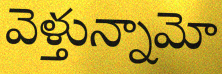
వెళ్తున్నామో